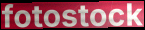
fotostock